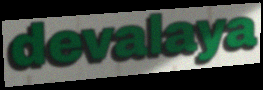
devalaya